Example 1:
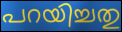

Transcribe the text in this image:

പറയിച്ചതു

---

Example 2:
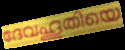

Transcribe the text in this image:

ദേവഹൂതിയെ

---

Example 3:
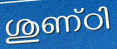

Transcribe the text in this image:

ശുണ്‌ഠി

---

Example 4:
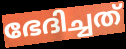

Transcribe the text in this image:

ഭേദിച്ചത്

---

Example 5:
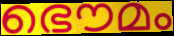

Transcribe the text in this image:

ഭൌമം